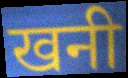
खनी